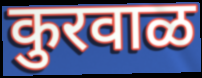
कुरवाळ